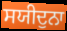
ਸਯੀਦੁਨਾ